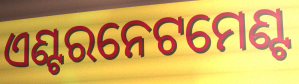
ଏଣ୍ଟରନେଟମେଣ୍ଟ